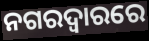
ନଗରଦ୍ୱାରରେ